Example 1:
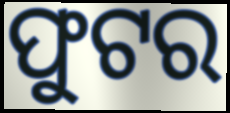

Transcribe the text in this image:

ଫୁଟର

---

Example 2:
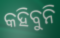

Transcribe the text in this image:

କହିବୁନି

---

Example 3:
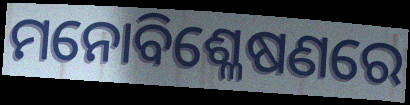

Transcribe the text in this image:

ମନୋବିଶ୍ଳେଷଣରେ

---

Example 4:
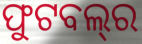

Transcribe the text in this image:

ଫୁଟବଲ୍‍ର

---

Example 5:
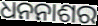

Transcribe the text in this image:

ଧନନାଶର